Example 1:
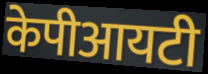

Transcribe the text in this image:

केपीआयटी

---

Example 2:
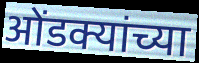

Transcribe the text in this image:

ओंडक्यांच्या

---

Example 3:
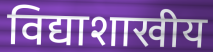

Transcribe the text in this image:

विद्याशाखीय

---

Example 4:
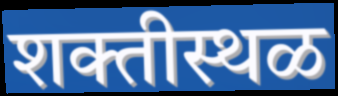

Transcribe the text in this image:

शक्तीस्थळ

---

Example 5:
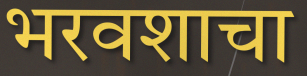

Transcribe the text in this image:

भरवशाचा